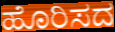
ಹೊರಿಸದ